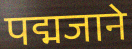
पद्मजाने